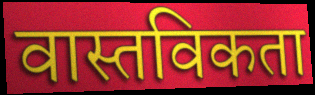
वास्तविकता